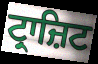
ਟ੍ਰਾਜ਼ਿਟ